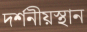
দর্শনীয়স্থান